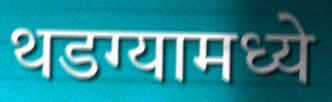
थडग्यामध्ये